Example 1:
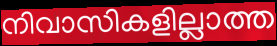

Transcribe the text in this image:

നിവാസികളില്ലാത്ത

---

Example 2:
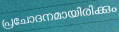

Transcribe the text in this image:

പ്രചോദനമായിരിക്കും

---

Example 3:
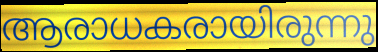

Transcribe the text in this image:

ആരാധകരായിരുന്നു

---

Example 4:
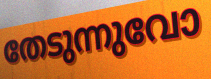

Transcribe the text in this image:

തേടുന്നുവോ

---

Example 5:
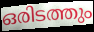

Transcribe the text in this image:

ഒരിടത്തും